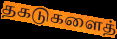
தகடுகளைத்